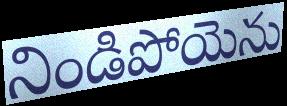
నిండిపోయెను